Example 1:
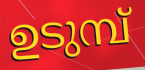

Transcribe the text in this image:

ഉടുമ്പ്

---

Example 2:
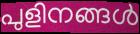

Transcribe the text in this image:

പുളിനങ്ങൾ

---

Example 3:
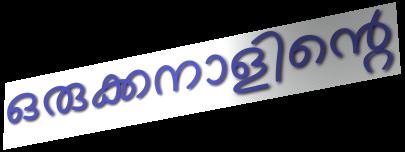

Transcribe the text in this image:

ഒരുക്കനാളിന്റെ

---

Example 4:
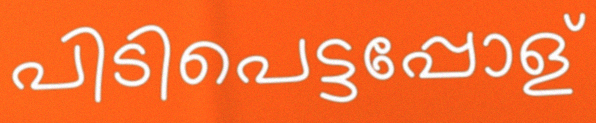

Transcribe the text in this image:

പിടിപെട്ടപ്പോള്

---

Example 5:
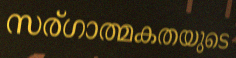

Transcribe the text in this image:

സര്ഗാത്മകതയുടെ